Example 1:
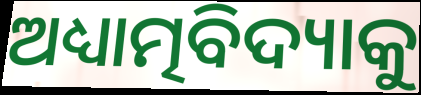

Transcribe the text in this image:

ଅଧ୍ୟାତ୍ମବିଦ୍ୟାକୁ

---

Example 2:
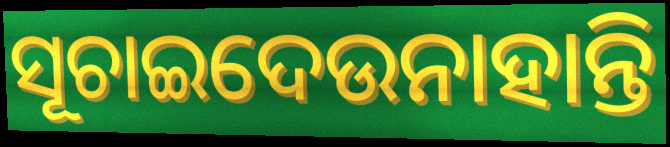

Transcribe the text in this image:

ସୂଚାଇଦେଉନାହାନ୍ତି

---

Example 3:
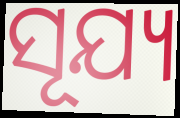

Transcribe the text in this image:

ସୂଯ୍ୟ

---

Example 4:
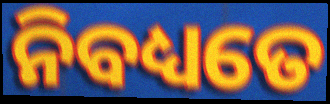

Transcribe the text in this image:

ନିବଧ୍ୟତେ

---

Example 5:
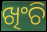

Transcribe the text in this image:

ଖିଂଚି